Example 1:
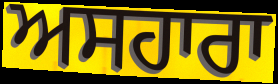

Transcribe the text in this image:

ਅਸਹਾਰਾ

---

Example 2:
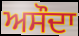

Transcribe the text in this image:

ਅਸੌਦਾ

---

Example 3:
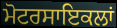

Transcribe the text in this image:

ਮੋਟਰਸਾਇਕਲਾਂ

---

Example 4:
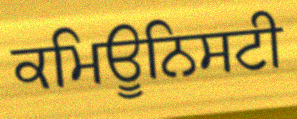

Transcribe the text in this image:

ਕਮਿਊਨਿਸਟੀ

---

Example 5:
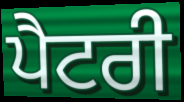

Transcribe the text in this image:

ਪੈਟਰੀ